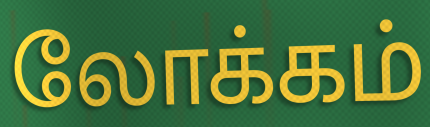
லோக்கம்